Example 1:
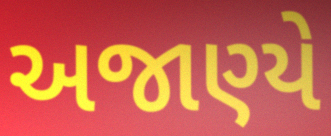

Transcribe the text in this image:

અજાણ્યે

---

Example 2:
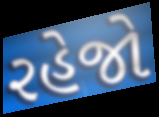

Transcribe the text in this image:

રહેજો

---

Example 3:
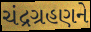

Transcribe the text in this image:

ચંદ્રગ્રહણને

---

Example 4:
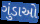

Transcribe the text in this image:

ગુંડાઓ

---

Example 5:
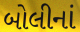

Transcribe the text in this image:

બોલીનાં